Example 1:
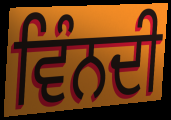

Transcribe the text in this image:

ਵਿੰਨਦੀ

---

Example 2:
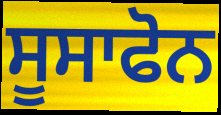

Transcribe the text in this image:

ਸੂਸਾਫੋਨ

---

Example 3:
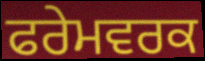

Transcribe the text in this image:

ਫਰੇਮਵਰਕ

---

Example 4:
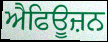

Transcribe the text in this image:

ਐਫਿਊਜ਼ਨ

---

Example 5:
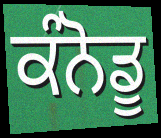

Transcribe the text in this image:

ਕੰਨੋਡੂ